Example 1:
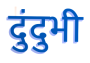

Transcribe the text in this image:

दुंदुभी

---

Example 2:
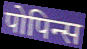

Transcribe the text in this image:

पोपिन्स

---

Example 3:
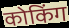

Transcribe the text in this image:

कोकिंग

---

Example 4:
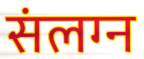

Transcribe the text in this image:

संलग्‍न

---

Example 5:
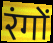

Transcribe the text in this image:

रंगों